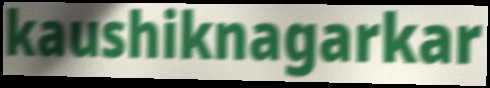
kaushiknagarkar